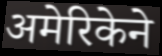
अमेरिकेने